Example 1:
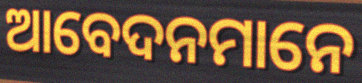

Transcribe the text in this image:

ଆବେଦନମାନେ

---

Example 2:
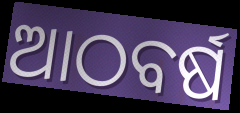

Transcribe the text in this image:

ଆଠବର୍ଷ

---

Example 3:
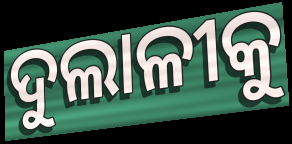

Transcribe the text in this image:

ଦୁଲାଳୀକୁ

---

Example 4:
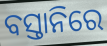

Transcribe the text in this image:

ବସ୍ତାନିରେ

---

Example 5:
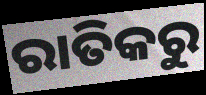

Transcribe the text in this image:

ରାତିକରୁ